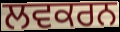
ਲਵਕਰਨ